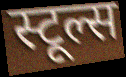
स्टूल्स